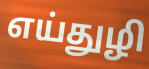
எய்துழி